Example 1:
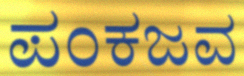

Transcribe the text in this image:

ಪಂಕಜವ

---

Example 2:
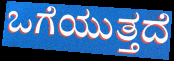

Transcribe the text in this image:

ಒಗೆಯುತ್ತದೆ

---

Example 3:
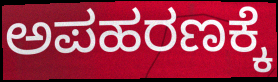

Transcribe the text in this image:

ಅಪಹರಣಕ್ಕೆ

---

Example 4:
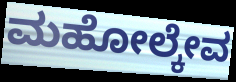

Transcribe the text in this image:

ಮಹೋಲ್ಕೇವ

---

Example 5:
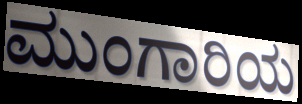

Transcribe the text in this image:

ಮುಂಗಾರಿಯ